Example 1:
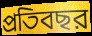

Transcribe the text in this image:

প্রতিবছর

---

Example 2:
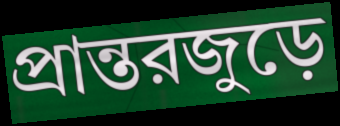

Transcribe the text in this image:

প্রান্তরজুড়ে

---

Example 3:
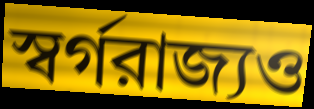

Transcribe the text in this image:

স্বর্গরাজ্যও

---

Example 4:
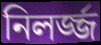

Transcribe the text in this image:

নিলর্জ্জ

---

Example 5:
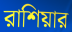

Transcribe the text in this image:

রাশিয়ার